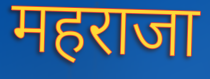
महराजा